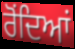
ਰੋਂਦਿਆਂ